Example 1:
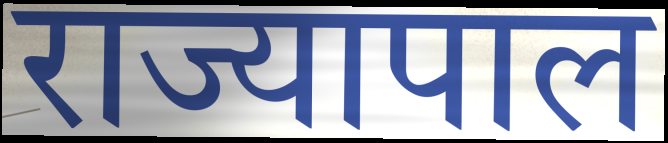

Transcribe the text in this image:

राज्यापाल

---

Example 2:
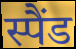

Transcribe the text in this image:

स्पैंड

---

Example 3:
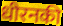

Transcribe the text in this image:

धीरनकी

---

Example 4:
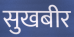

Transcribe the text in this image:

सुखबीर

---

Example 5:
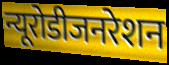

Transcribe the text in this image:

न्यूरोडीजनरेशन